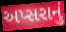
અપ્સરાનું